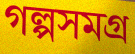
গল্পসমগ্র